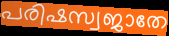
പരിഷസ്വജാതേ